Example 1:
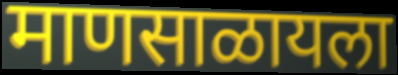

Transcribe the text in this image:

माणसाळायला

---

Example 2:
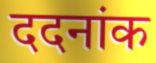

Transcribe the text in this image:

ददनांक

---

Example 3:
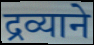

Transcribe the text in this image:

द्रव्याने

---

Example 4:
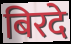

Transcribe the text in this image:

बिरदे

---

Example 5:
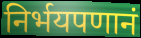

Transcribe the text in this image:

निर्भयपणानं